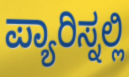
ಪ್ಯಾರಿಸ್ನಲ್ಲಿ